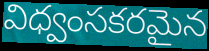
విధ్వంసకరమైన